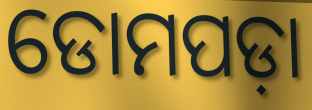
ଡୋମପଡ଼ା